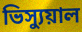
ভিস্যুয়াল